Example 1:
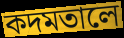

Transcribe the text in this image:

কদমতালে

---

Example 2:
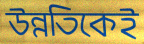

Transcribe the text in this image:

উন্নতিকেই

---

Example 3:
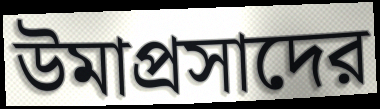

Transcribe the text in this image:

উমাপ্রসাদের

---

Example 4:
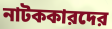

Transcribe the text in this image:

নাটককারদের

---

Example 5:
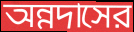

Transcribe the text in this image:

অন্নদাসের